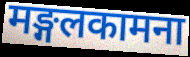
मङ्गलकामना